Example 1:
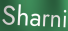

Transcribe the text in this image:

Sharni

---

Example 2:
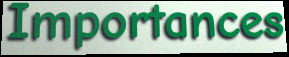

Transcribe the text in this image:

Importances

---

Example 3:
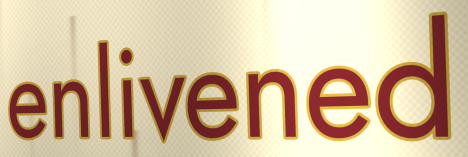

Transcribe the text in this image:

enlivened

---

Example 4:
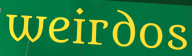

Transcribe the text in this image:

weirdos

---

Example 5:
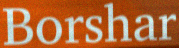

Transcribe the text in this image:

Borshar